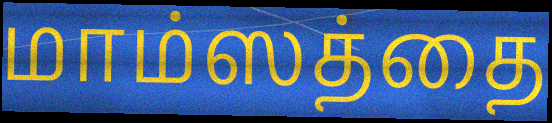
மாம்ஸத்தை